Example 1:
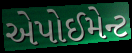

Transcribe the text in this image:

એપોઈમેન્ટ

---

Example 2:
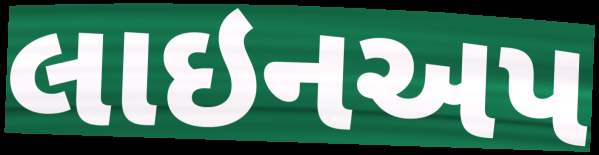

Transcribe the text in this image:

લાઇનઅપ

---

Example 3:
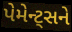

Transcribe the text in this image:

પેમેન્ટ્સને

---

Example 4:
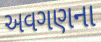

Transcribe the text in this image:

અવગણના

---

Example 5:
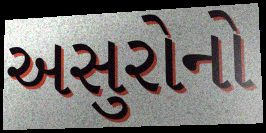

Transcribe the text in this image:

અસુરોનો